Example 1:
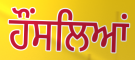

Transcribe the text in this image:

ਹੌਂਸਲਿਆਂ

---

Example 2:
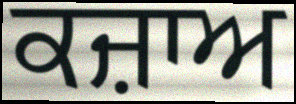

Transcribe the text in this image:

ਕਜ਼ਾਅ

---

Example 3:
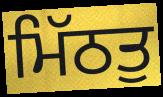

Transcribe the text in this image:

ਮਿੱਠਤੁ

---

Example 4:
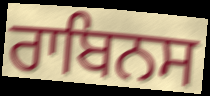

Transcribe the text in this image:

ਰਾਬਿਨਸ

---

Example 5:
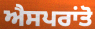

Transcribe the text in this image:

ਐਸਪਰਾਂਤੋ